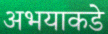
अभयाकडे